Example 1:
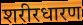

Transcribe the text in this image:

शरीरधारण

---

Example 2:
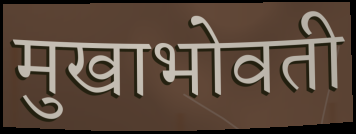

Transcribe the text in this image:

मुखाभोवती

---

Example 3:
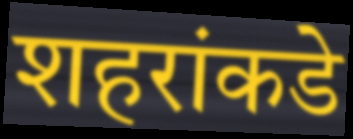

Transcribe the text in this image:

शहरांकडे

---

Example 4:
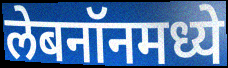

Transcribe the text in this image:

लेबनॉनमध्ये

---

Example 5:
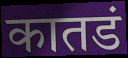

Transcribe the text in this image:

कातडं